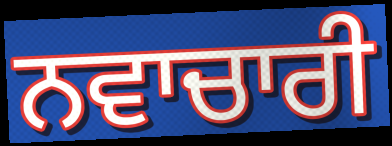
ਨਵਾਚਾਰੀ